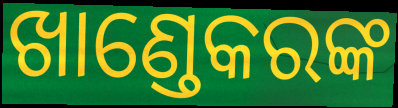
ଖାଣ୍ଡେକରଙ୍କ